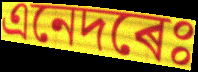
এনেদৰেঃ